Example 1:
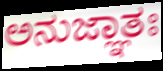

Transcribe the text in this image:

ಅನುಜ್ಞಾತಃ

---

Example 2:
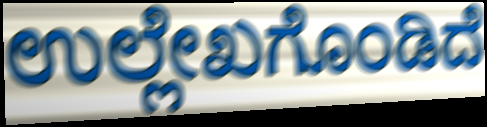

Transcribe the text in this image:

ಉಲ್ಲೇಖಗೊಂಡಿದೆ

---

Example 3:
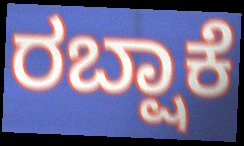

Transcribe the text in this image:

ರಬ್ಷಾಕೆ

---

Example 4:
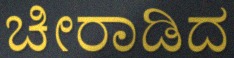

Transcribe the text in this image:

ಚೀರಾಡಿದ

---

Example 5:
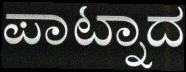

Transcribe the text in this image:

ಪಾಟ್ನಾದ